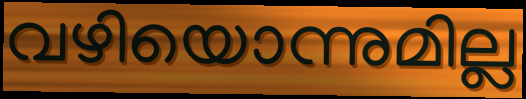
വഴിയൊന്നുമില്ല